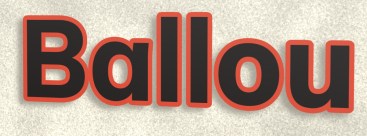
Ballou